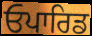
ਓਪਾਰਿਡ